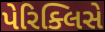
પેરિક્લિસે